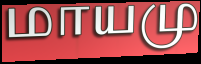
மாயமு